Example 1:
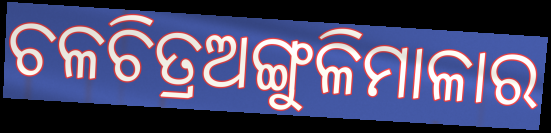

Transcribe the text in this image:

ଚଳଚିତ୍ରଅଙ୍ଗୁଳିମାଳାର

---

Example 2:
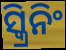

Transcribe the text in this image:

ସ୍କ୍ରିନିଂ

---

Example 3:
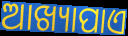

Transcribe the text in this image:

ଆଖ୍ୟାପାଏ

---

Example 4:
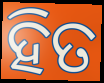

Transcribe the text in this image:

ହିତ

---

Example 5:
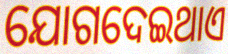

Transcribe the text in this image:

ଯୋଗଦେଇଥାଏ